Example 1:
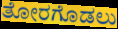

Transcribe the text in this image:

ತೋರಗೊಡಲು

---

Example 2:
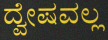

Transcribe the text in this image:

ದ್ವೇಷವಲ್ಲ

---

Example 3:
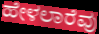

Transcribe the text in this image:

ಹೇಳಲಾರೆವು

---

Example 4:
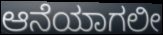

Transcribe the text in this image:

ಆನೆಯಾಗಲೀ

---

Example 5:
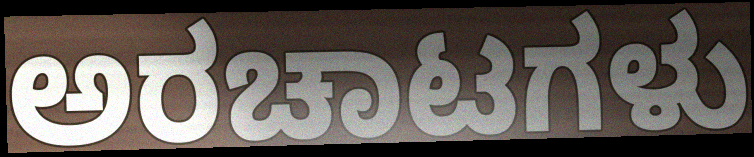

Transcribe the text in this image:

ಅರಚಾಟಗಳು